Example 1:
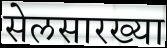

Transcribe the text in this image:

सेलसारख्या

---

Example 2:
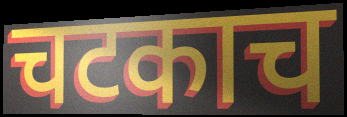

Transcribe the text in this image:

चटकाच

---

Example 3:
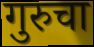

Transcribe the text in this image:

गुरुचा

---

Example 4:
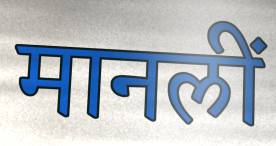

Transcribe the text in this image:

मानलीं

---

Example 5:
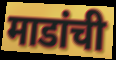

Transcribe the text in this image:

माडांची